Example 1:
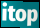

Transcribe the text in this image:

itop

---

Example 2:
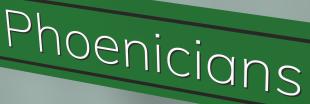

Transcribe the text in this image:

Phoenicians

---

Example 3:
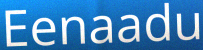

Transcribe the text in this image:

Eenaadu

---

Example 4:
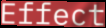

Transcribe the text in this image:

Effect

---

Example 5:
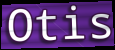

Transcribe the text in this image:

Otis